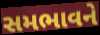
સમભાવને